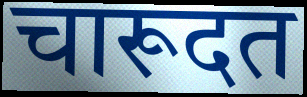
चारूदत